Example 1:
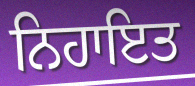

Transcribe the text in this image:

ਨਿਹਾਇਤ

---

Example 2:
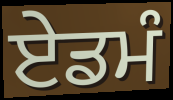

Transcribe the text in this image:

ਏਡਮੰ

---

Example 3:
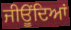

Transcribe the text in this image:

ਜੀਊਂਦਿਆਂ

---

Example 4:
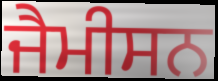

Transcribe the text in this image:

ਜੈਮੀਸਨ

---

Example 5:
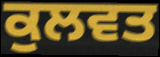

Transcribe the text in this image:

ਕੁਲਵਤ